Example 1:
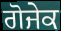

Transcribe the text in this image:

ਗੋਜੇਕ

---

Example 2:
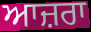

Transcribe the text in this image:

ਆਜ਼ਰਾ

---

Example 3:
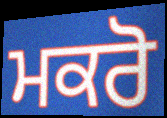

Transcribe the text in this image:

ਮਕਰੋ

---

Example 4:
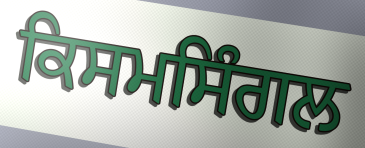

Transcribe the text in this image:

ਕਿਸਮਸਿੰਗਲ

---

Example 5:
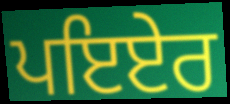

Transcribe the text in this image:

ਪਇਏਰ